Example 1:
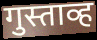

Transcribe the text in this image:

गुस्ताव्ह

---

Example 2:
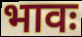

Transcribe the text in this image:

भावः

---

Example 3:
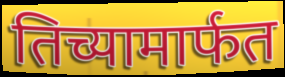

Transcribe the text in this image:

तिच्यामार्फत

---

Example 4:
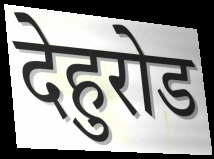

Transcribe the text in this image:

देहुरोड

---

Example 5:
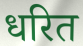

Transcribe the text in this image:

धरित